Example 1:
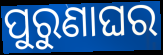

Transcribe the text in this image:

ପୁରୁଣାଘର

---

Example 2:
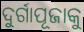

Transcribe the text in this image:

ଦୁର୍ଗାପୂଜାକୁ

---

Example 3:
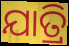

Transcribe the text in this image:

ଯାତ୍ରି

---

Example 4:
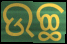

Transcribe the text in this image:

ଉଚ୍ଛ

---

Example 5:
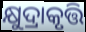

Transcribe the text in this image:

କ୍ଷୁଦ୍ରାକୃତ୍ତି